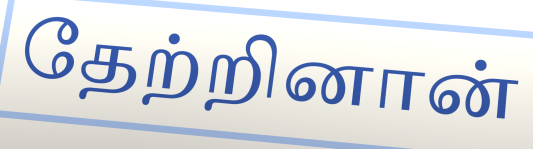
தேற்றினான்